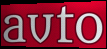
auto